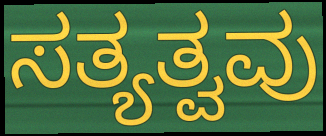
ಸತ್ಯತ್ವವು